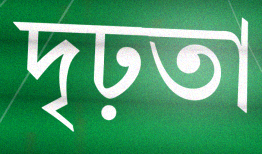
দৃঢ়তা